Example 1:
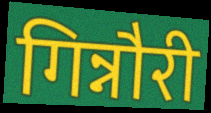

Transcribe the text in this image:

गिन्नौरी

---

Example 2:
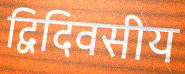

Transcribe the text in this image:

द्विदिवसीय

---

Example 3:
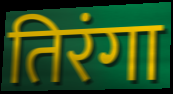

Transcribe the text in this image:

तिरंगा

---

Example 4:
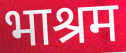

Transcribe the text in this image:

भाश्रम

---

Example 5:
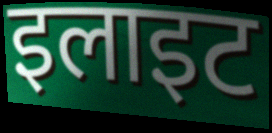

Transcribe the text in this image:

इलाइट